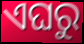
ଏଘରୁ